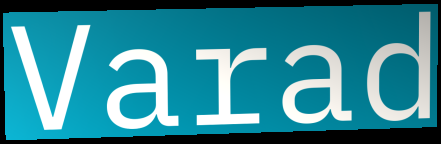
Varad